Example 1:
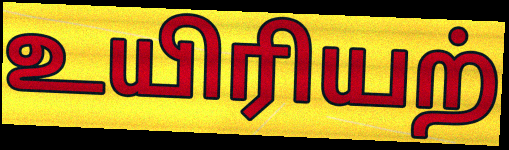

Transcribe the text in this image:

உயிரியற்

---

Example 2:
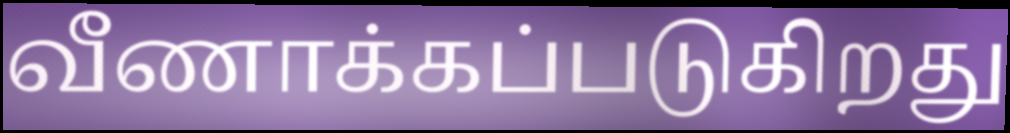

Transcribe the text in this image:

வீணாக்கப்படுகிறது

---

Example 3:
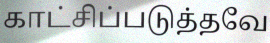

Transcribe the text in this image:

காட்சிப்படுத்தவே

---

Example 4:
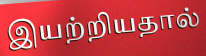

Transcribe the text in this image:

இயற்றியதால்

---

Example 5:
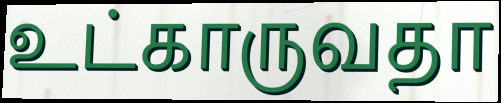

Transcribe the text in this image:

உட்காருவதா